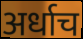
अर्धाच